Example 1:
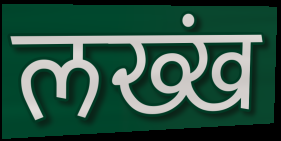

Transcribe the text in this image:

लख्खं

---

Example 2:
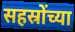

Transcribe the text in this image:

सहस्रोंच्या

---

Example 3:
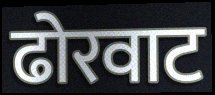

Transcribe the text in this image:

ढोरवाट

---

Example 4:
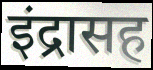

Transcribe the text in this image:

इंद्रासह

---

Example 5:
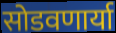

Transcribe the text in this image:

सोडवणार्या